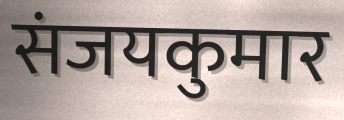
संजयकुमार